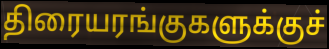
திரையரங்குகளுக்குச்